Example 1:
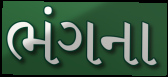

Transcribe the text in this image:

ભંગના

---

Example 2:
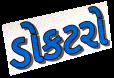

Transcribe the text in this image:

ડોકટરો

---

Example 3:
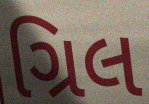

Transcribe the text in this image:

ગ્રિલ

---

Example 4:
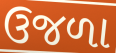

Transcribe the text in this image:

ઉજળા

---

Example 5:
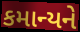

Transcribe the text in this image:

કમાન્યને